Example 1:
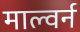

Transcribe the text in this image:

माल्वर्न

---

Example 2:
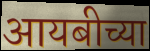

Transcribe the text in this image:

आयबीच्या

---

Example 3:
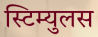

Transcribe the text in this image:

स्टिम्युलस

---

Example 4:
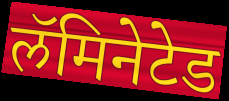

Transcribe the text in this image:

लॅमिनेटेड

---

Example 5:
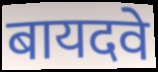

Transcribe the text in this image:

बायदवे